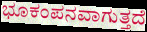
ಭೂಕಂಪನವಾಗುತ್ತದೆ